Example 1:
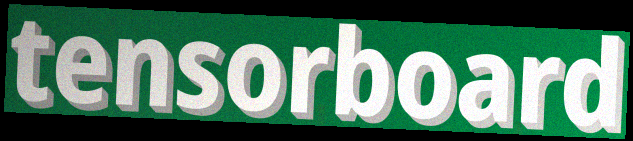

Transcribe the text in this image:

tensorboard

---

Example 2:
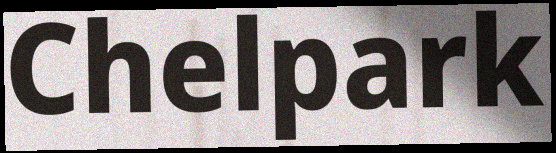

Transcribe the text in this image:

Chelpark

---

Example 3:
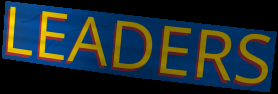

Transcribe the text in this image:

LEADERS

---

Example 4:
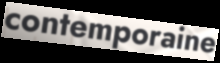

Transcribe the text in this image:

contemporaine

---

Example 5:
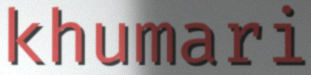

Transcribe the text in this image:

khumari